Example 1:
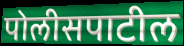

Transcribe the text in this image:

पोलीसपाटील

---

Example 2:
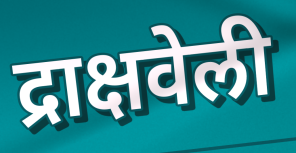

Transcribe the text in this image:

द्राक्षवेली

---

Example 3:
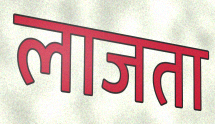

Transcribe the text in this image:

लाजता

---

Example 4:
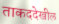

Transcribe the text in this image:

ताकददेखील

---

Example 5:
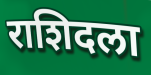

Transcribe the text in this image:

राशिदला